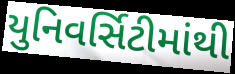
યુનિવર્સિટીમાંથી